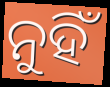
ନୁହିଁ